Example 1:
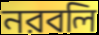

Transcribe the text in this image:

নরবলি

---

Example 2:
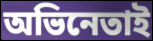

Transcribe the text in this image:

অভিনেতাই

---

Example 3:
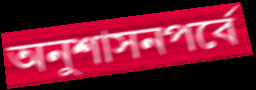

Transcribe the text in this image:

অনুশাসনপর্বে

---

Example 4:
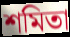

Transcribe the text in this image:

শমিতা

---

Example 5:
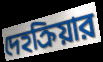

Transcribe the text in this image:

দেহক্রিয়ার